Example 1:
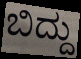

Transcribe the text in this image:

ಬಿದ್ದು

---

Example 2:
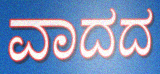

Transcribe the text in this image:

ವಾದದ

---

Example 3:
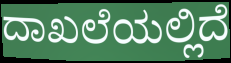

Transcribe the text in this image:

ದಾಖಲೆಯಲ್ಲಿದೆ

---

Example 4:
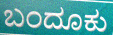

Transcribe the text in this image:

ಬಂದೂಕು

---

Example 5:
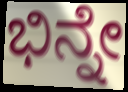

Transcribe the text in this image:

ಭಿನ್ನೇ